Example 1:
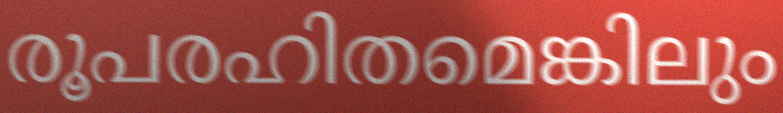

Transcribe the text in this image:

രൂപരഹിതമെങ്കിലും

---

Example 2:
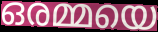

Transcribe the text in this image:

ഒരമ്മയെ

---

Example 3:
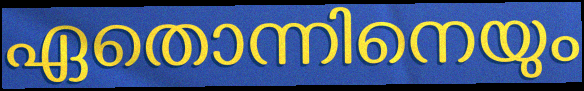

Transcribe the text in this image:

ഏതൊന്നിനെയും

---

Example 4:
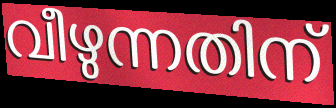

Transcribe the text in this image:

വീഴുന്നതിന്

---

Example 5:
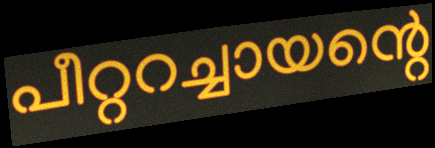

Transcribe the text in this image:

പീറ്ററച്ചായന്റെ